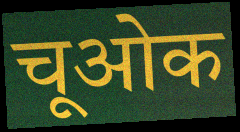
चूओक